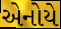
એનોયે